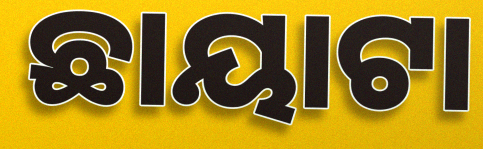
ଛାୟାଟା